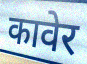
कावेर